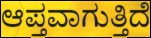
ಆಪ್ತವಾಗುತ್ತಿದೆ